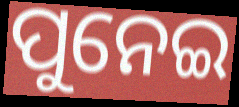
ପୁନେଇ